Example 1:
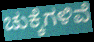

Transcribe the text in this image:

ಚುಕ್ಕೆಗಳಿವೆ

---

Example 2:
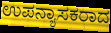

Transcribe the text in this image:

ಉಪನ್ಯಾಸಕರಾದ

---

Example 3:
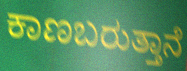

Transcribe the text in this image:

ಕಾಣಬರುತ್ತಾನೆ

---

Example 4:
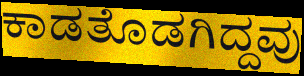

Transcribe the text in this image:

ಕಾಡತೊಡಗಿದ್ದವು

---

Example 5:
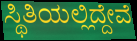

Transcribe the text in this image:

ಸ್ಥಿತಿಯಲ್ಲಿದ್ದೇವೆ